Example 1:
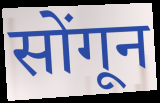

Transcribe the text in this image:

सोंगून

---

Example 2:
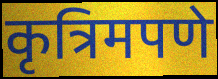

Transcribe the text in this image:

कृत्रिमपणे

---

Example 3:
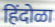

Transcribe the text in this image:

हिंदोळा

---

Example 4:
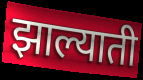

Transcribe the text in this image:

झाल्याती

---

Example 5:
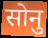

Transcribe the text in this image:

सोनु